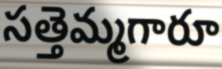
సత్తెమ్మగారూ